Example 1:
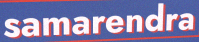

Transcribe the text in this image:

samarendra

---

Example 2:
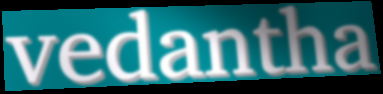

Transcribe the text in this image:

vedantha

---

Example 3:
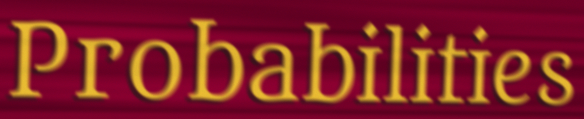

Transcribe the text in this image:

Probabilities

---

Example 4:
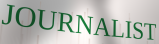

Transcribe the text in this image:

JOURNALIST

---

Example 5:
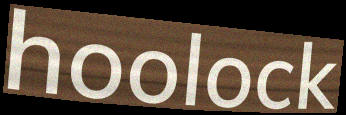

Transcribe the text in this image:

hoolock